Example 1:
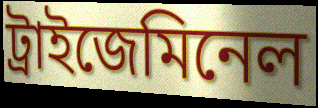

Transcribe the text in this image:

ট্ৰাইজেমিনেল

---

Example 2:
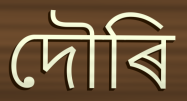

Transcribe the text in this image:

দৌৰি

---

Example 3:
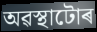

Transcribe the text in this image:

অৱস্থাটোৰ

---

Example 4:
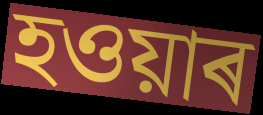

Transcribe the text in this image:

হওয়াৰ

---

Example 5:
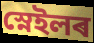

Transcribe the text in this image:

স্নেইলৰ